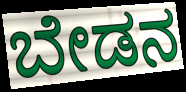
ಬೇಡನ